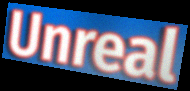
Unreal